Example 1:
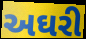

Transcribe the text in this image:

અઘરી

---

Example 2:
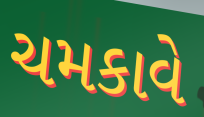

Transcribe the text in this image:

ચમકાવે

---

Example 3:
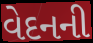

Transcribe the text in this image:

વેદનની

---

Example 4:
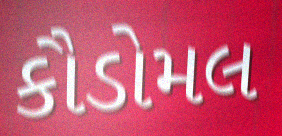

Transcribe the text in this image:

કૌડોમલ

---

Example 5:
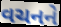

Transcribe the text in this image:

વચનને